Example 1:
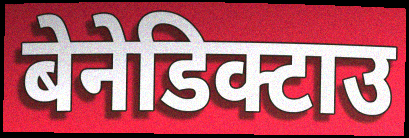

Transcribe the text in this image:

बेनेडिक्टाउ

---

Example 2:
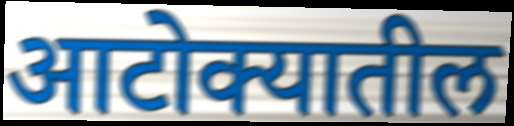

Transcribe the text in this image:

आटोक्यातील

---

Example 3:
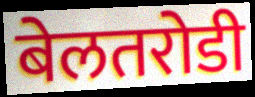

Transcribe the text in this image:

बेलतरोडी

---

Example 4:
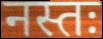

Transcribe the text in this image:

नस्तः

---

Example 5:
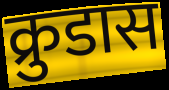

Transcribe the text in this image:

क्रुडास